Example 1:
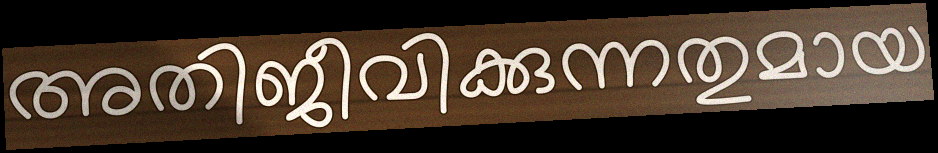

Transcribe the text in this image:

അതിജീവിക്കുന്നതുമായ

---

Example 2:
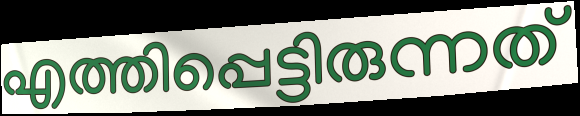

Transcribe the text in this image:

എത്തിപ്പെട്ടിരുന്നത്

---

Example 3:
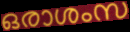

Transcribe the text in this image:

ഒരാശംസ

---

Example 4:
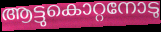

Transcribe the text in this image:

ആട്ടുകൊറ്റനോടു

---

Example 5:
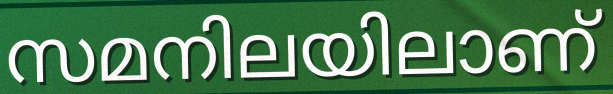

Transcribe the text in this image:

സമനിലയിലാണ്